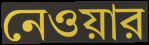
নেওয়ার